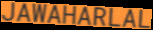
JAWAHARLAL